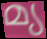
മ്യ